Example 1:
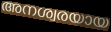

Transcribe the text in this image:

അനശ്വരയായ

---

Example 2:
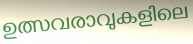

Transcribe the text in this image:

ഉത്സവരാവുകളിലെ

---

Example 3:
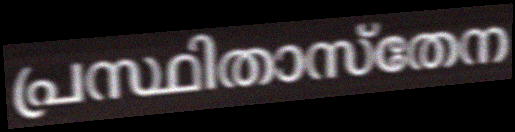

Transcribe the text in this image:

പ്രസ്ഥിതാസ്തേന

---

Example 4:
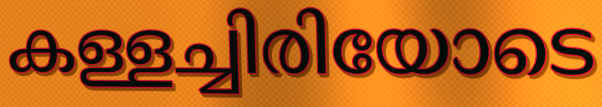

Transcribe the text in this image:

കള്ളച്ചിരിയോടെ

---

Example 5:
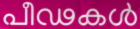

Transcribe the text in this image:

പീഢകൾ